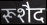
रूशैद